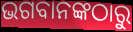
ଭଗବାନଙ୍କଠାରୁ